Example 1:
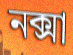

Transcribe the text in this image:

নক্সা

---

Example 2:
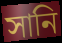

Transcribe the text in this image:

সানি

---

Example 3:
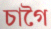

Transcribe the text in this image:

চাগৈ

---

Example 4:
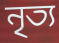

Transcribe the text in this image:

নৃত্য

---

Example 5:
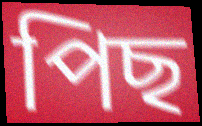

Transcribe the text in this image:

পিছ